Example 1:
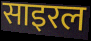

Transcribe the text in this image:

साइरल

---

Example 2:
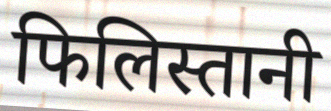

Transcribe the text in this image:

फिलिस्तानी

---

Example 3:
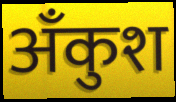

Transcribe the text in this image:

अँकुश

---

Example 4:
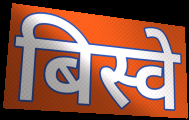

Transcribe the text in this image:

बिस्वे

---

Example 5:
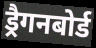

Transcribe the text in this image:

ड्रैगनबोर्ड